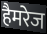
हैमरेज